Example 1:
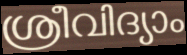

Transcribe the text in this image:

ശ്രീവിദ്യാം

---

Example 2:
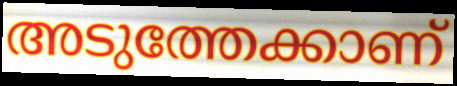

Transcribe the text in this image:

അടുത്തേക്കാണ്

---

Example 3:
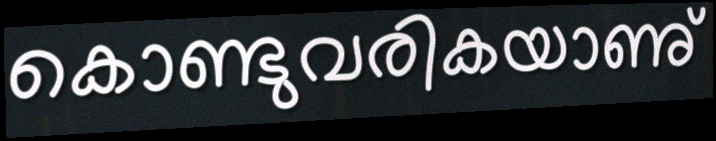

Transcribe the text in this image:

കൊണ്ടുവരികയാണു്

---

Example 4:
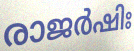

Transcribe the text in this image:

രാജർഷിഃ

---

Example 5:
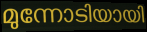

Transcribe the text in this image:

മുന്നോടിയായി